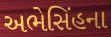
અભેસિંહના